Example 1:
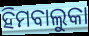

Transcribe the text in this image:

ହିମବାଲୁକା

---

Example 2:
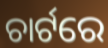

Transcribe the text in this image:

ଚାର୍ଟରେ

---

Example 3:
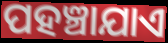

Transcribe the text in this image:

ପହଞ୍ଚାଯାଏ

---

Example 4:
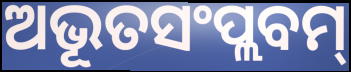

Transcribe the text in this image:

ଅଭୂତସଂପ୍ଲବମ୍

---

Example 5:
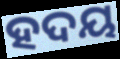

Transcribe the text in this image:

ହଦୟ